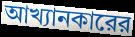
আখ্যানকারের